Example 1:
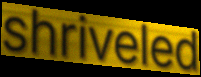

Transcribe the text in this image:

shriveled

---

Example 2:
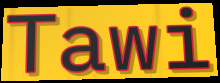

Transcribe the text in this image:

Tawi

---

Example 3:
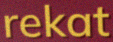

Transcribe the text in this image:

rekat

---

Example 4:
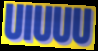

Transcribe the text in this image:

UIUUU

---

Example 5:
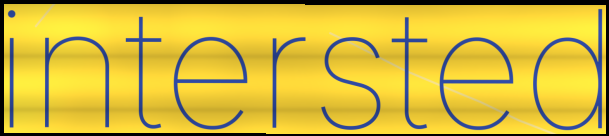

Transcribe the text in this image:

intersted